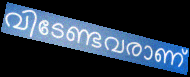
വിടേണ്ടവരാണ്